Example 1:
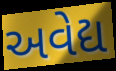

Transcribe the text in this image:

અવેદ્ય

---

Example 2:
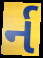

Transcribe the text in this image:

ર્ન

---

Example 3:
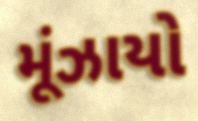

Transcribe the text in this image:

મૂંઝાયો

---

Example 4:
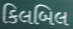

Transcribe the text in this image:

કિલબિલ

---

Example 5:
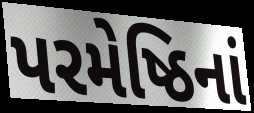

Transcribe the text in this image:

પરમેષ્ઠિનાં